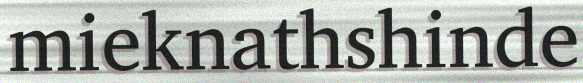
mieknathshinde